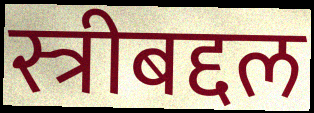
स्त्रीबद्दल